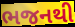
ભજનથી